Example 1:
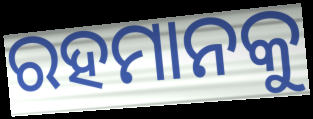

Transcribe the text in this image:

ରହମାନକୁ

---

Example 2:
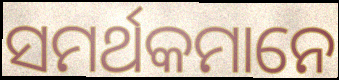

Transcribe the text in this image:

ସମର୍ଥକମାନେ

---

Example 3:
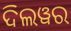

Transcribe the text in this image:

ଦିଲୱର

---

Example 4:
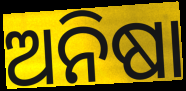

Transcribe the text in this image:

ଅନିଷା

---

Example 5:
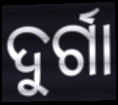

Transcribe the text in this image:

ଦୁର୍ଗା